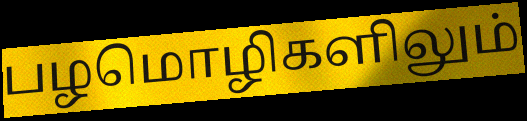
பழமொழிகளிலும்